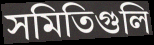
সমিতিগুলি